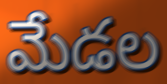
మేడల